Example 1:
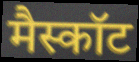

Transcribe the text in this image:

मैस्कॉट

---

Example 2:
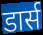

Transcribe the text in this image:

डार्स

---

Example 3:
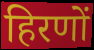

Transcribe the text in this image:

हिरणों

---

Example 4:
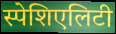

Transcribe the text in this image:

स्पेशिएलिटी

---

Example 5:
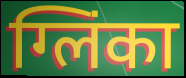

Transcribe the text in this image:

ग्लिंका